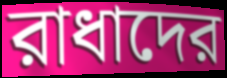
রাধাদের